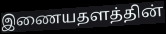
இணையதளத்தின்